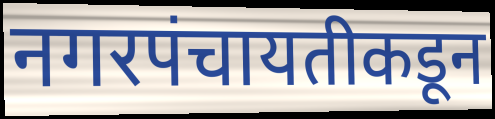
नगरपंचायतीकडून